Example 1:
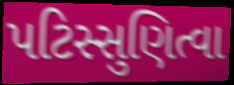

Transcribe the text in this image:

પટિસ્સુણિત્વા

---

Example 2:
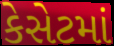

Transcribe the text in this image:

કેસેટમાં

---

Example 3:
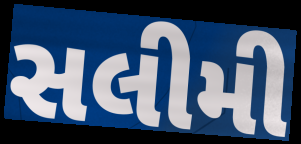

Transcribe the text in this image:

સલીમી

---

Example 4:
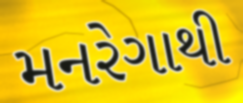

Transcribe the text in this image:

મનરેગાથી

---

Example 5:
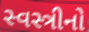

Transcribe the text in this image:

સ્વસ્ત્રીનો